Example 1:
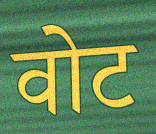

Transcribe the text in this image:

वोट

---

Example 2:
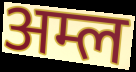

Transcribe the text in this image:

अम्ल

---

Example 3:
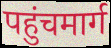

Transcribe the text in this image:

पहुंचमार्ग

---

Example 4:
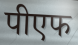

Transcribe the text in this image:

पीएफ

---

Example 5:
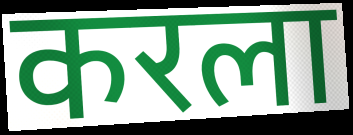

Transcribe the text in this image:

करला